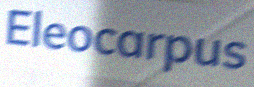
Eleocarpus